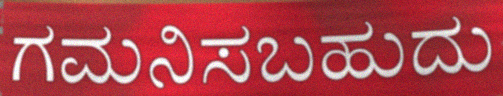
ಗಮನಿಸಬಹುದು